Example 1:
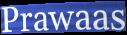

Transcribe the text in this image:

Prawaas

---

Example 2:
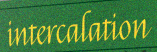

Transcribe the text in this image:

intercalation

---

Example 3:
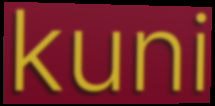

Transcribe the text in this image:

kuni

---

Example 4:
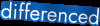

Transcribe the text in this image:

differenced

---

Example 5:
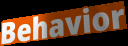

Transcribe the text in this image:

Behavior